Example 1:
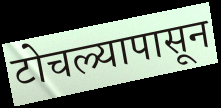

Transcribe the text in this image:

टोचल्यापासून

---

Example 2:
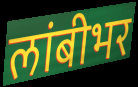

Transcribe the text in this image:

लांबीभर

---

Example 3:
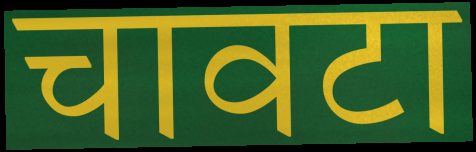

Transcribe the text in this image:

चावटा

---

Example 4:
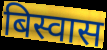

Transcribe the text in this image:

बिस्वास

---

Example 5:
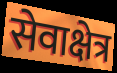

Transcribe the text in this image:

सेवाक्षेत्र